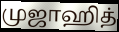
முஜாஹித்